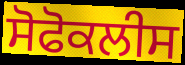
ਸੋਫੋਕਲੀਸ